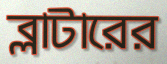
ব্লাটারের